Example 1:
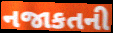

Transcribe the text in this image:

નજાકતની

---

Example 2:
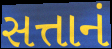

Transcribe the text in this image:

સત્તાનં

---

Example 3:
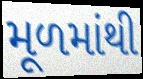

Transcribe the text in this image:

મૂળમાંથી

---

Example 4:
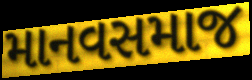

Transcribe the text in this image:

માનવસમાજ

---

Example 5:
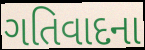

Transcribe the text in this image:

ગતિવાદના